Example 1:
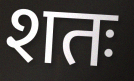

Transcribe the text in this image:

शतः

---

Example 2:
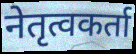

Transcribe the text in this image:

नेतृत्वकर्ता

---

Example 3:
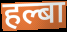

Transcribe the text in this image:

हल्बा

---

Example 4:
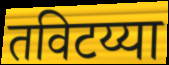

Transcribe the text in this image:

तविटय्या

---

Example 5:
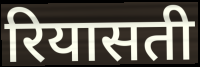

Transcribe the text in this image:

रियासती